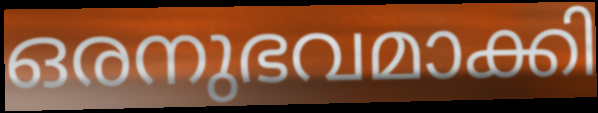
ഒരനുഭവമാക്കി